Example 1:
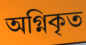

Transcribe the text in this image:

অগ্নিকৃত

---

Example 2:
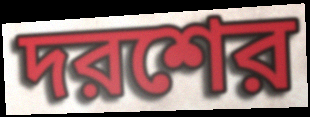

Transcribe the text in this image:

দরশের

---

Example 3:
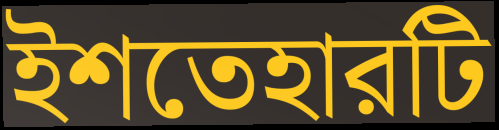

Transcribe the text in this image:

ইশতেহারটি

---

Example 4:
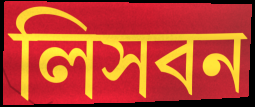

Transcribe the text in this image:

লিসবন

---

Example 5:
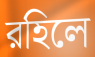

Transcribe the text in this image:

রহিলে